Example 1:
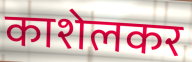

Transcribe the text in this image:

काशेलकर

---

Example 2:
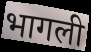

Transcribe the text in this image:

भागली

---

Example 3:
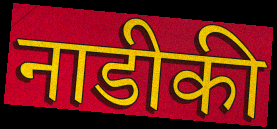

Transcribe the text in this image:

नाडीकी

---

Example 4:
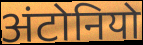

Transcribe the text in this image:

अंटोनियो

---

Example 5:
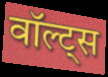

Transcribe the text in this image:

वॉल्ट्स